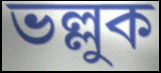
ভল্লুক